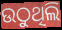
ଉଠୁଥିଲି